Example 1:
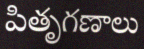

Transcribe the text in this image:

పితృగణాలు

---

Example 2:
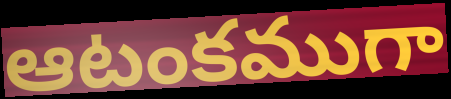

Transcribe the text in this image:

ఆటంకముగా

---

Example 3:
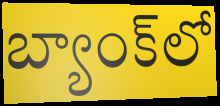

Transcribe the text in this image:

బ్యాంక్‌లో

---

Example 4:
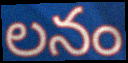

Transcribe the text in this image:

లనం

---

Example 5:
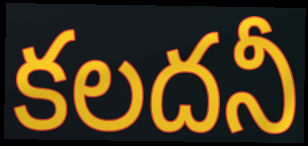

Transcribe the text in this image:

కలదనీ